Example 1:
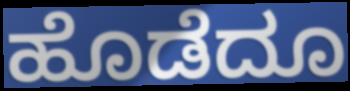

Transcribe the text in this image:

ಹೊಡೆದೂ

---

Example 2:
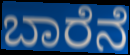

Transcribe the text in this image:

ಬಾರೆನೆ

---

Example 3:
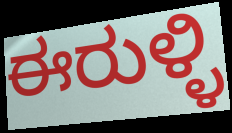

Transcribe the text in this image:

ಈರುಳ್ಳಿ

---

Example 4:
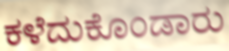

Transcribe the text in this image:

ಕಳೆದುಕೊಂಡಾರು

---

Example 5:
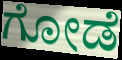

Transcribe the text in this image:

ಗೋಡೆ